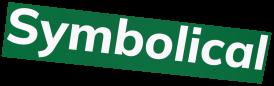
Symbolical